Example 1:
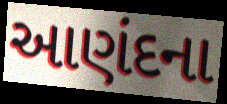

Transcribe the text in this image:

આણંદના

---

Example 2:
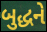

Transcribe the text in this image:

બુદ્ધને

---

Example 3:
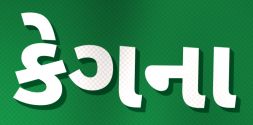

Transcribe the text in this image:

કેગના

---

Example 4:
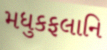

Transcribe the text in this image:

મધુકફલાનિ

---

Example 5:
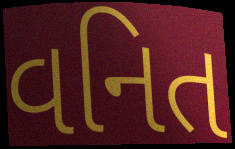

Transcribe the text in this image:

વનિત